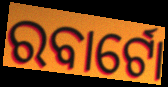
ରବାର୍ଟୋ